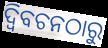
ଦ୍ବିବଚନଠାରୁ